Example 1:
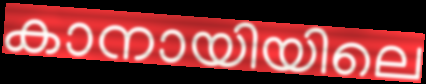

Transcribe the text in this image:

കാനായിയിലെ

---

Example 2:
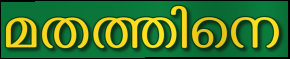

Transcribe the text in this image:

മതത്തിനെ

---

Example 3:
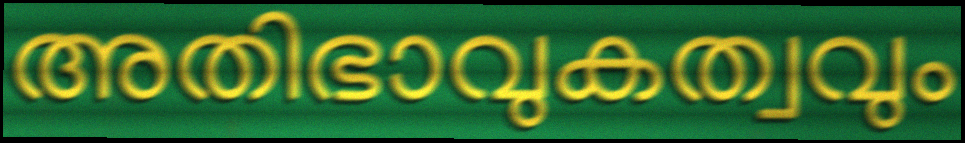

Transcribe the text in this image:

അതിഭാവുകത്വവും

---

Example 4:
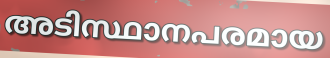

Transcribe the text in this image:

അടിസ്ഥാനപരമായ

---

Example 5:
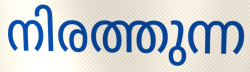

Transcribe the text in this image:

നിരത്തുന്ന